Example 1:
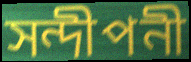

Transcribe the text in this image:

সন্দীপনী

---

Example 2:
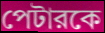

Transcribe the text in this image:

পেটারকে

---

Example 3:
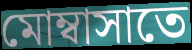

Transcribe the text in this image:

মোম্বাসাতে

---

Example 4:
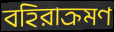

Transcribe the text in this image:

বহিরাক্রমণ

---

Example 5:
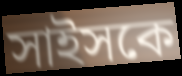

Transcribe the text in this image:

সাইসকে